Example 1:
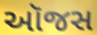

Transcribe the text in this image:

ઑજસ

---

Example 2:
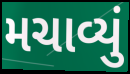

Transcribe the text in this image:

મચાવ્યું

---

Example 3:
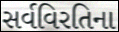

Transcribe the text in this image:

સર્વવિરતિના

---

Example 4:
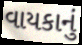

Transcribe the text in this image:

વાયકાનું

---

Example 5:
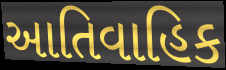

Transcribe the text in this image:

આતિવાહિક